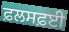
ਫ਼ਲਸਫ਼ਈ